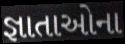
જ્ઞાતાઓના